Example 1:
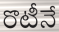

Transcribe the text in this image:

రొటీనే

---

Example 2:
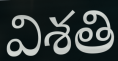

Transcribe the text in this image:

విశతి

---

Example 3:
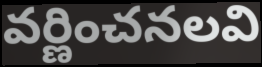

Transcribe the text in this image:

వర్ణించనలవి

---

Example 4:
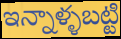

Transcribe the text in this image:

ఇన్నాళ్ళబట్టి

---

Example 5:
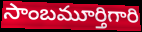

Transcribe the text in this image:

సాంబమూర్తిగారి